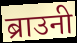
ब्राउनी